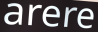
arere